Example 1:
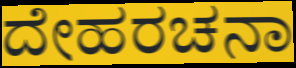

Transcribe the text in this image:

ದೇಹರಚನಾ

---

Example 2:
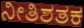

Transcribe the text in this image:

ನೀತಿಶತಕ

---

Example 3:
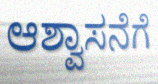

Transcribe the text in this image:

ಆಶ್ವಾಸನೆಗೆ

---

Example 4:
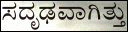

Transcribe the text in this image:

ಸದೃಢವಾಗಿತ್ತು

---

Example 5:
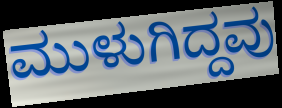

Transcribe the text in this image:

ಮುಳುಗಿದ್ದವು